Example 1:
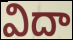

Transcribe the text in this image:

విదా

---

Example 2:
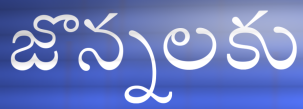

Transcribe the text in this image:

జొన్నలకు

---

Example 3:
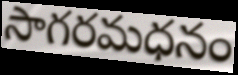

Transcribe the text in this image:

సాగరమధనం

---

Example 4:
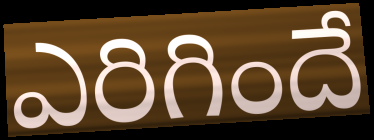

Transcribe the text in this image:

ఎరిగిందే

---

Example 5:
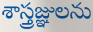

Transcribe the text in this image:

శాస్త్రజ్ఞులను